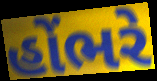
હોંભરે